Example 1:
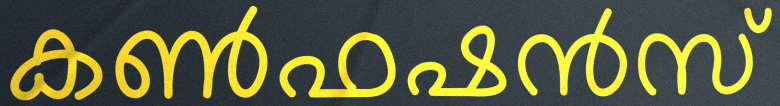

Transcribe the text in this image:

കൺഫഷൻസ്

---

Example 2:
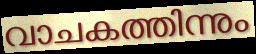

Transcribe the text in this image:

വാചകത്തിന്നും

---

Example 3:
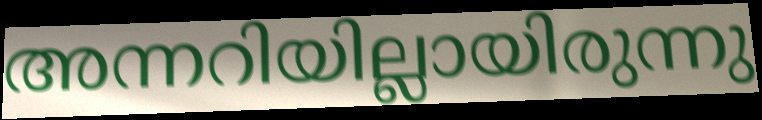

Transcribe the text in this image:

അന്നറിയില്ലായിരുന്നു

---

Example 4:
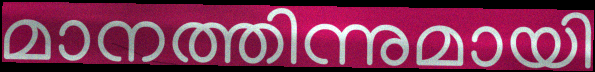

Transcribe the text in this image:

മാനത്തിന്നുമായി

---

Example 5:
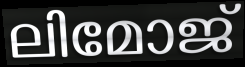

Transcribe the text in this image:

ലിമോജ്